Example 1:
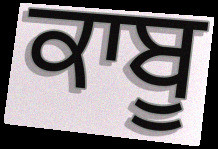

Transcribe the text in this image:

ਕਾਬੂ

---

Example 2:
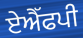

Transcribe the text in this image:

ਏਐੱਫਪੀ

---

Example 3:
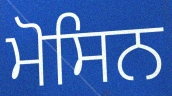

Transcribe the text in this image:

ਮੋਸਿਨ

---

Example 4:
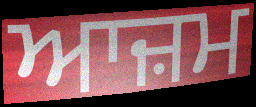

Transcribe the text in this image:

ਆਜ਼ਮ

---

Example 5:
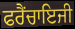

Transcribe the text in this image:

ਫਰੈਂਚਾਇਜੀ